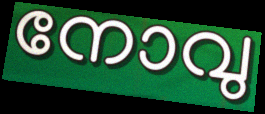
നോവു